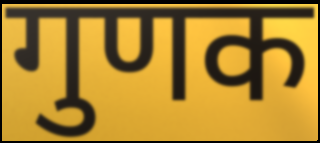
गुणक